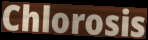
Chlorosis